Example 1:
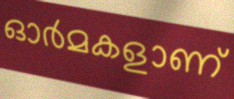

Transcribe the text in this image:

ഓർമകളാണ്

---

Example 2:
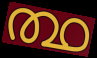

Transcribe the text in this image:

ത്ഥ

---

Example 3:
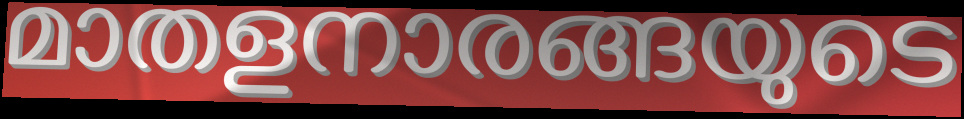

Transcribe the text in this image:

മാതളനാരങ്ങയുടെ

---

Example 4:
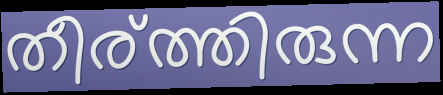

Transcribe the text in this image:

തീര്ത്തിരുന്ന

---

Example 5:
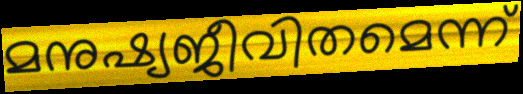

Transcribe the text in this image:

മനുഷ്യജീവിതമെന്ന്